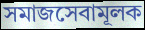
সমাজসেবামূলক